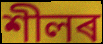
শীলৰ